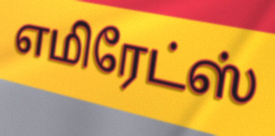
எமிரேட்ஸ்